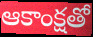
ఆకాంక్షతో